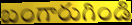
బంగారుగిండి